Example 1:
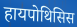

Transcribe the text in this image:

हायपोथिसिस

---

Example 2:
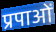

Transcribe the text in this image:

प्रपाओं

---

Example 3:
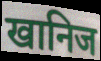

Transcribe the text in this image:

खानिज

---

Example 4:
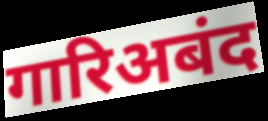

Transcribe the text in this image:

गारिअबंद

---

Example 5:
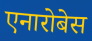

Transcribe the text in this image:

एनारोबेस